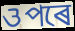
ওপৰে